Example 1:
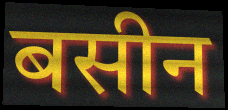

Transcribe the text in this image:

बसीन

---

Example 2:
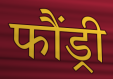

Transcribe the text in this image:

फौंड्री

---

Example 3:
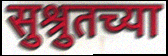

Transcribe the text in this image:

सुश्रुतच्या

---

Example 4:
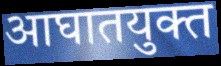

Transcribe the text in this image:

आघातयुक्त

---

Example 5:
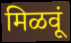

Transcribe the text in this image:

मिळवूं